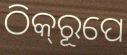
ଠିକ୍‌ରୂପେ